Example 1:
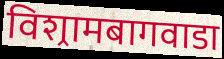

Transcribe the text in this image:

विश्रामबागवाडा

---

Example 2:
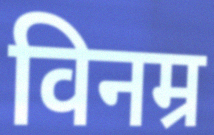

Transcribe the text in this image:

विनम्र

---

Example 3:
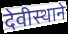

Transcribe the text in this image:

देवीस्थाने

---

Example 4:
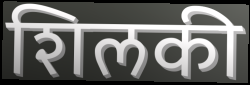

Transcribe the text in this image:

शिलकी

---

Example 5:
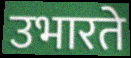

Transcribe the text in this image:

उभारते